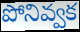
పోనివ్వక